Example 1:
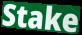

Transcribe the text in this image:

Stake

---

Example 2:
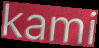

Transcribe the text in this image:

kami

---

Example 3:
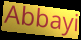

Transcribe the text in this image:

Abbayi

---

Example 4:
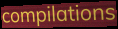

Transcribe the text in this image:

compilations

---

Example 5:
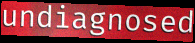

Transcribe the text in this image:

undiagnosed